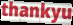
thankyu